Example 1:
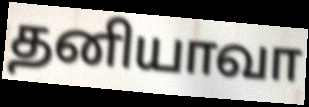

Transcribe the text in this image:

தனியாவா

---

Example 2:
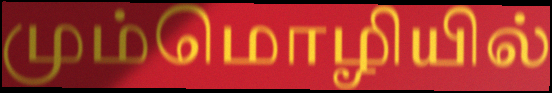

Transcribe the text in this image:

மும்மொழியில்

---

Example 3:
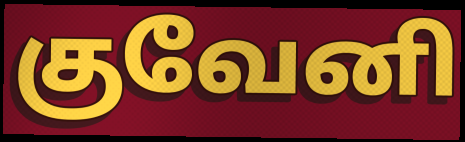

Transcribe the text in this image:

குவேனி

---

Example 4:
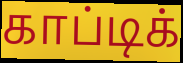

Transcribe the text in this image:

காப்டிக்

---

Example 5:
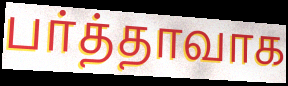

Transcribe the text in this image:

பர்த்தாவாக